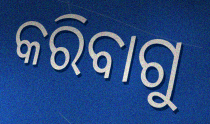
କରିବାଗୁ